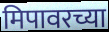
मिपावरच्या